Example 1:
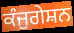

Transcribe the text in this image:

ਕੰਜੁਗੇਸ਼ਨ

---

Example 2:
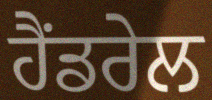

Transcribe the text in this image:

ਹੈਂਡਰੇਲ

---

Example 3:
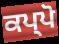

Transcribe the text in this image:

ਕਪ੍ਪੋ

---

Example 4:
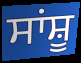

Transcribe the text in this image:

ਸਾਂਸ਼ੂ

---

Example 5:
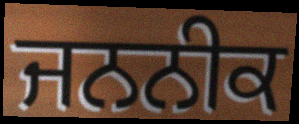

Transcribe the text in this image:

ਜਨਨੀਕ